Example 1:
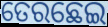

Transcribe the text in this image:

ତେରଛେଇ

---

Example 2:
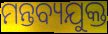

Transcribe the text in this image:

ମନ୍ତବ୍ୟଯୁକ୍ତ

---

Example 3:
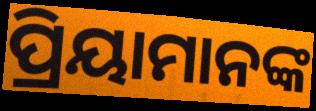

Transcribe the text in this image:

ପ୍ରିୟାମାନଙ୍କ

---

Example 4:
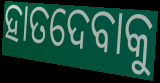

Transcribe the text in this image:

ହାତଦେବାକୁ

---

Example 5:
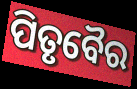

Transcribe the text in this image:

ପିତୃବୈର